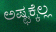
ಅಷ್ಟಕ್ಕೆಲ್ಲ